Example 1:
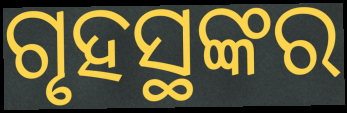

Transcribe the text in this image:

ଗୃହସ୍ଥଙ୍କର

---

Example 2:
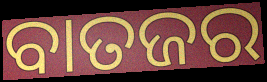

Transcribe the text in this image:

ବାତଜର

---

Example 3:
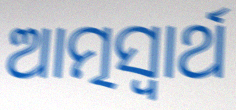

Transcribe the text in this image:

ଆତ୍ମସ୍ଵାର୍ଥ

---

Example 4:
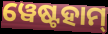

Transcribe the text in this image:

ୱେଷ୍ଟହାମ୍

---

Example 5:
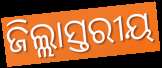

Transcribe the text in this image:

ଜିଲ୍ଲାସ୍ତରୀୟ